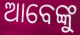
ଆବେଙ୍କୁ